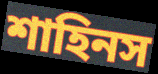
শাহিনস